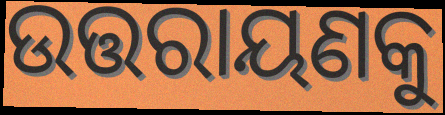
ଉତ୍ତରାୟଣକୁ